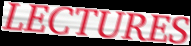
LECTURES